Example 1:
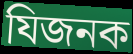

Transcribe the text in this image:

যিজনক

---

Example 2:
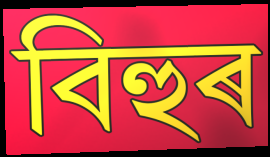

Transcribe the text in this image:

বিহুৰ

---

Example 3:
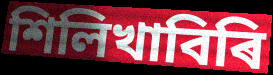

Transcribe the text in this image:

শিলিখাবিৰি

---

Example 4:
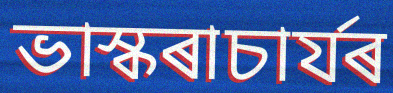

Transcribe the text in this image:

ভাস্কৰাচাৰ্যৰ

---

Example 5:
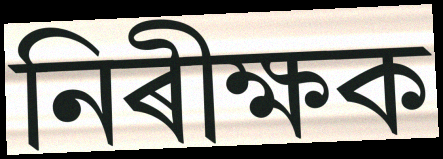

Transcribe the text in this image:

নিৰীক্ষক